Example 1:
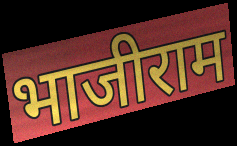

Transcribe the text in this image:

भाजीराम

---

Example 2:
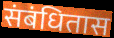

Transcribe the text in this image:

संबंधितास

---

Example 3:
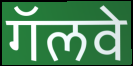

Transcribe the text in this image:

गॅलवे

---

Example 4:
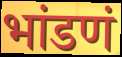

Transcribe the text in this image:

भांडणं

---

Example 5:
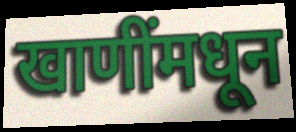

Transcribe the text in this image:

खाणींमधून